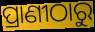
ପ୍ରାଣୀଠାରୁ